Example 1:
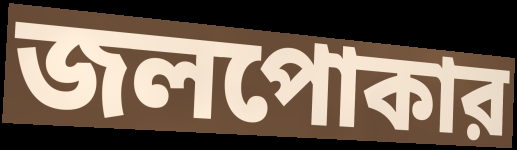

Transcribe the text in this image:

জলপোকার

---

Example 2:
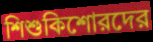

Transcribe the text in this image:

শিশুকিশোরদের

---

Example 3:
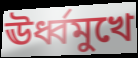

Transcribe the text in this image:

ঊর্ধ্বমুখে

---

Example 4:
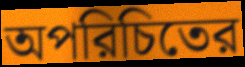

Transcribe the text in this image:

অপরিচিতের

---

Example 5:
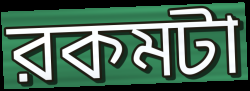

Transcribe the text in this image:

রকমটা